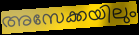
അസേക്കയിലും